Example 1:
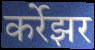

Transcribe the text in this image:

कर्रेझर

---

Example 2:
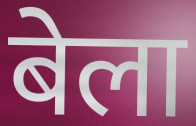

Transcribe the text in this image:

बेला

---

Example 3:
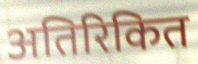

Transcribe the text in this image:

अतिरिकित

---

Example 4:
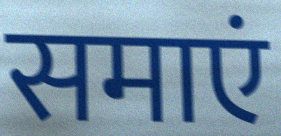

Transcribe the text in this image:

समाएं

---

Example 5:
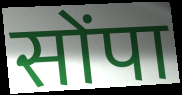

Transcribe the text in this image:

सोंपा